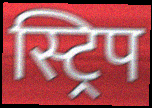
स्ट्रिप